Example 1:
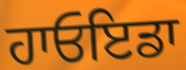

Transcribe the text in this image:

ਹਾਓਇਡਾ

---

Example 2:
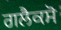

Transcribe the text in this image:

ਗਲੈਕਸੋ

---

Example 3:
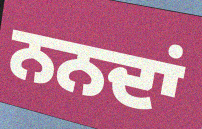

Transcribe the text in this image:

ਨਨਦਾਂ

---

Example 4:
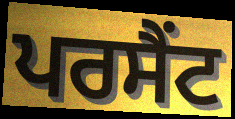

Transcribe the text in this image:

ਪਰਸੈਂਟ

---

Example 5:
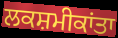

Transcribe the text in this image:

ਲਕਸ਼ਮੀਕਾਂਤਾ